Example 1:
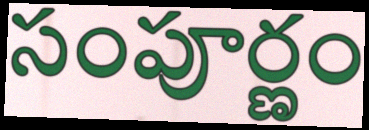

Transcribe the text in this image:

సంపూర్ణం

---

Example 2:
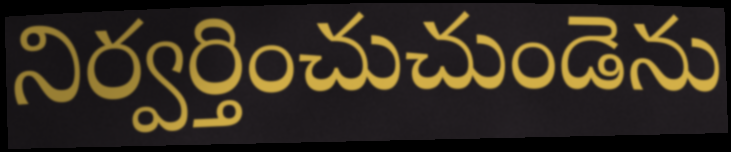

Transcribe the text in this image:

నిర్వర్తించుచుండెను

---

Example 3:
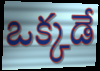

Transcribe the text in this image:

ఒక్కడే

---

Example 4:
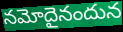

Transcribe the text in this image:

నమోదైనందున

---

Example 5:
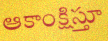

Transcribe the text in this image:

ఆకాంక్షిస్తూ